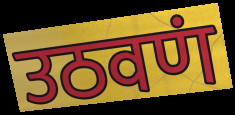
उठवणं